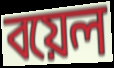
বয়েল